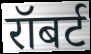
रॉबर्ट